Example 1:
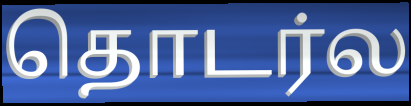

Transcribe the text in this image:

தொடர்ல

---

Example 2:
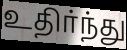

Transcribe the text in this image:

உதிர்ந்து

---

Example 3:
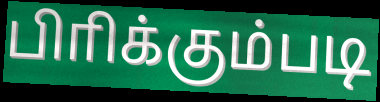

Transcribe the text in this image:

பிரிக்கும்படி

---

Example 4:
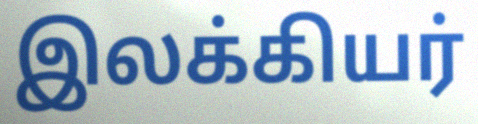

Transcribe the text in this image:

இலக்கியர்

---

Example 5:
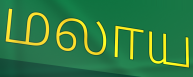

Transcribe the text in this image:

மலாய